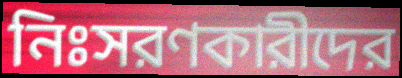
নিঃসরণকারীদের